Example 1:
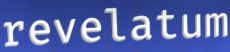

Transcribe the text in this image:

revelatum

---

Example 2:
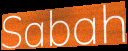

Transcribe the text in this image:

Sabah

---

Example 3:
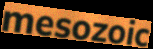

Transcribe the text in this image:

mesozoic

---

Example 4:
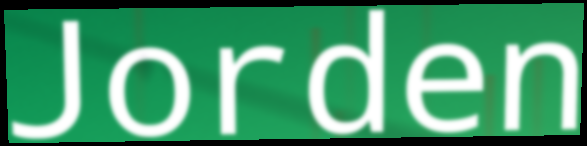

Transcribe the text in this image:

Jorden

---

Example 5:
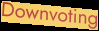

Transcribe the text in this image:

Downvoting